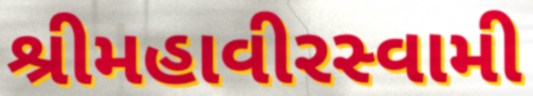
શ્રીમહાવીરસ્વામી